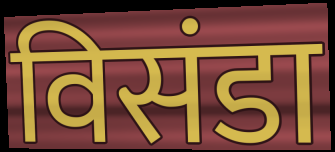
विसंडा